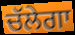
ਚੱਲੇਗਾ